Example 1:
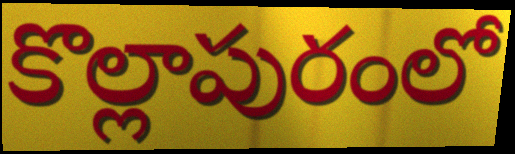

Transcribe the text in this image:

కొల్లాపురంలో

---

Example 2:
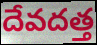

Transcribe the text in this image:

దేవదత్త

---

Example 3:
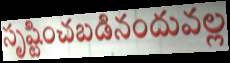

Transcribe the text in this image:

సృష్టించబడినందువల్ల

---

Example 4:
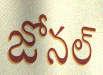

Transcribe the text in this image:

జోనల్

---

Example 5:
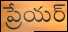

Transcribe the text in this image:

ప్రేయర్